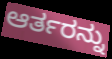
ಆರ್ತರನ್ನು